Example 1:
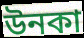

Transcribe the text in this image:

উনকা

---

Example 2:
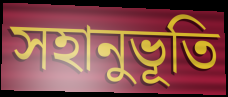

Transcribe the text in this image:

সহানুভূতি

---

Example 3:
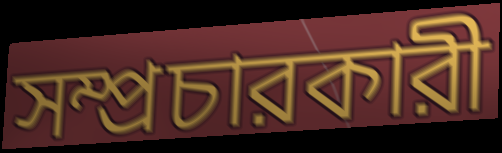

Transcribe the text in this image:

সম্প্রচারকারী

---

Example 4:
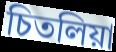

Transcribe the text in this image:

চিতলিয়া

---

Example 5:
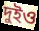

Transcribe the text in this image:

দুইও